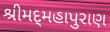
શ્રીમદ્‌મહાપુરાણ